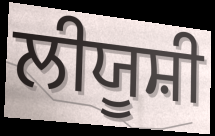
ਲੀਯੂਸ਼ੀ